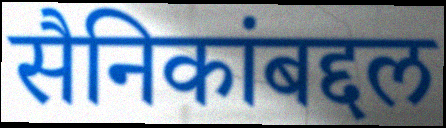
सैनिकांबद्दल